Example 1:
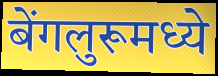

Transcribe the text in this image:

बेंगलुरूमध्ये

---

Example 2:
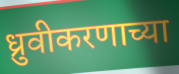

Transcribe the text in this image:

ध्रुवीकरणाच्या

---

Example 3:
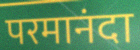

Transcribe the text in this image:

परमानंदा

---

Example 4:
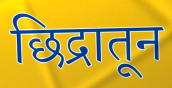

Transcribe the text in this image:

छिद्रातून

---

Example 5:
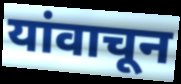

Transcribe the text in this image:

यांवाचून